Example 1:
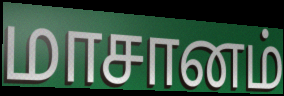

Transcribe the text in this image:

மாசானம்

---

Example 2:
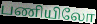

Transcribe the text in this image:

பணியிலோ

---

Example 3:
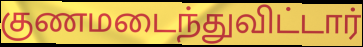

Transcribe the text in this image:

குணமடைந்துவிட்டார்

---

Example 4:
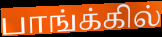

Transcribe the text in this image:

பாங்க்கில்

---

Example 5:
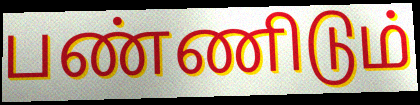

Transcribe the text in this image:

பண்ணிடும்